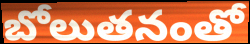
బోలుతనంతో